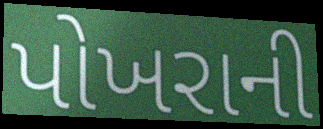
પોખરાની